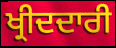
ਖ੍ਰੀਦਦਾਰੀ